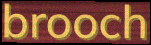
brooch